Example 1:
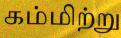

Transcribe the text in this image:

கம்மிற்று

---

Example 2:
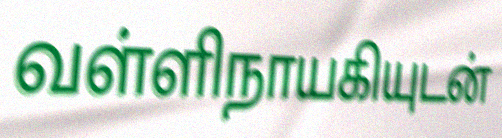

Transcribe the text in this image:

வள்ளிநாயகியுடன்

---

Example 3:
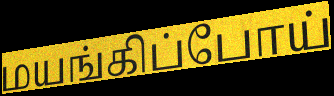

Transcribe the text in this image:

மயங்கிப்போய்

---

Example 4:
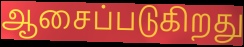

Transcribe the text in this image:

ஆசைப்படுகிறது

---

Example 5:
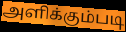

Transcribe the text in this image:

அளிக்கும்படி